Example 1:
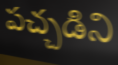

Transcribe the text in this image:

పచ్చడిని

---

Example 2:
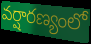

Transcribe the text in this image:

వర్షారణ్యంలో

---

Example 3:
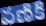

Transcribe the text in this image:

వణికి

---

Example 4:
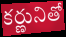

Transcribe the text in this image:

కర్ణునితో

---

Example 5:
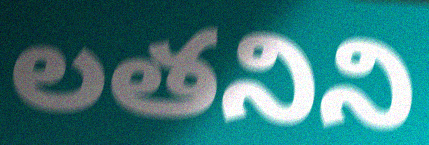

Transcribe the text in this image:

లతనిని